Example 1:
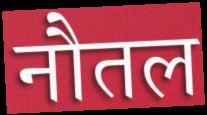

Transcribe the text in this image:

नौतल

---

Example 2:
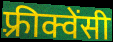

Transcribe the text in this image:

फ़्रीक्वेंसी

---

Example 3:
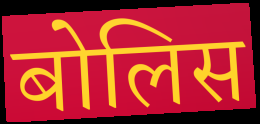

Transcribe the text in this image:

बोलिस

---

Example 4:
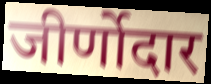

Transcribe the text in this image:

जीर्णोदार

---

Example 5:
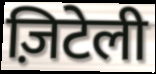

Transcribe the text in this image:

ज़िटेली